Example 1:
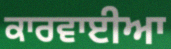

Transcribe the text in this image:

ਕਾਰਵਾਈਆ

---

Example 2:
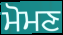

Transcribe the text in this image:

ਮੋਮਣ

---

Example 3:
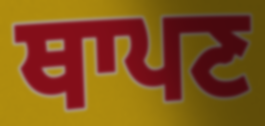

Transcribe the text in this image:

ਥਾਪਣ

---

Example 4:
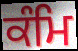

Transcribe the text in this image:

ਕੰਮਿ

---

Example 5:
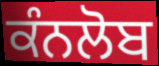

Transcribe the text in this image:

ਕੰਨਲੋਬ